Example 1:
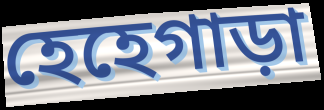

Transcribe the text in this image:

হেহেগাড়া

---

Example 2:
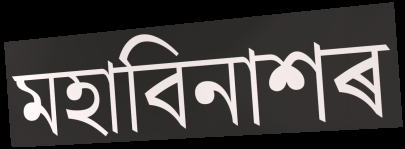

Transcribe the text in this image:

মহাবিনাশৰ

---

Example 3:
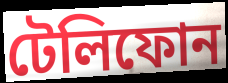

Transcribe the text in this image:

টেলিফোন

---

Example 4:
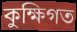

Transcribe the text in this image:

কুক্ষিগত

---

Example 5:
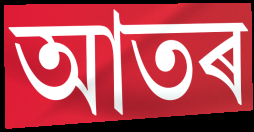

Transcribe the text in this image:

আতৰ